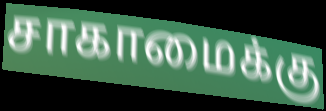
சாகாமைக்கு